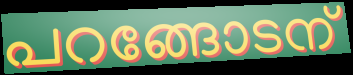
പറങ്ങോടന്